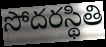
సోదరస్థితి